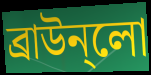
ব্রাউন্লো